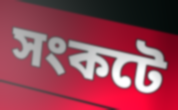
সংকটে